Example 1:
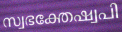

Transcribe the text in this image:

സ്വഭക്തേഷ്വപി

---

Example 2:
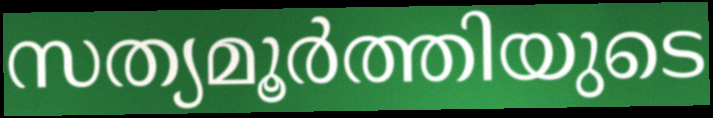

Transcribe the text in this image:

സത്യമൂർത്തിയുടെ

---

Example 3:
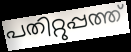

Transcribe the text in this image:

പതിറ്റുപ്പത്ത്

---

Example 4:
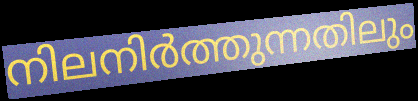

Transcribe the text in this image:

നിലനിർത്തുന്നതിലും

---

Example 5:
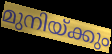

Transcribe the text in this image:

മുനിയ്ക്കും